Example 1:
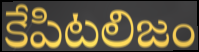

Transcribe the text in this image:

కేపిటలిజం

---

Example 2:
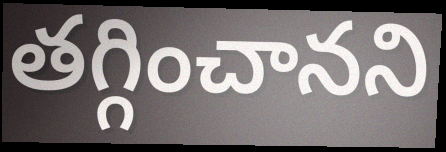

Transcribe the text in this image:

తగ్గించానని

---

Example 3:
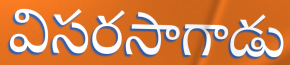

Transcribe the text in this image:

విసరసాగాడు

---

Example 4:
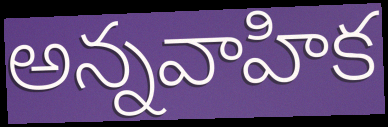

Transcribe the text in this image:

అన్నవాహిక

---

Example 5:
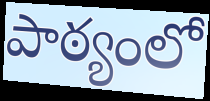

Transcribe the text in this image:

పాఠ్యంలో